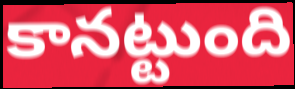
కానట్టుంది